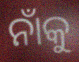
ନାଁକୁ